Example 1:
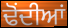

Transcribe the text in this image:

ਢੋਂਦੀਆਂ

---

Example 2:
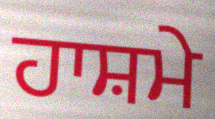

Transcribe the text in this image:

ਹਾਸ਼ਮੇ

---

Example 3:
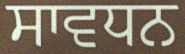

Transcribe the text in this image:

ਸਾਵਧਨ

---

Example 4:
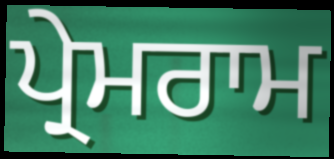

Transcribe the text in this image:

ਪ੍ਰੇਮਰਾਮ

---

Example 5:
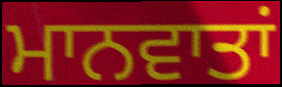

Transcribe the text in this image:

ਮਾਨਵਾਤਾਂ